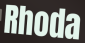
Rhoda